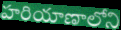
హరియాణాలోని